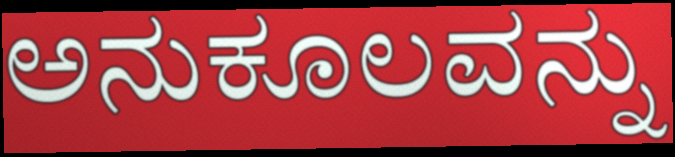
ಅನುಕೂಲವನ್ನು